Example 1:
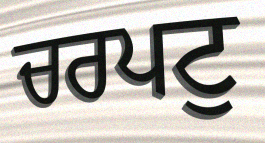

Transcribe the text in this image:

ਚਰਪਟੁ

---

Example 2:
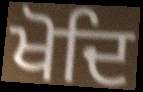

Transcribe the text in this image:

ਖੋਦਿ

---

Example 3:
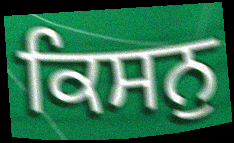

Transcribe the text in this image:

ਕਿਸਨੁ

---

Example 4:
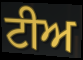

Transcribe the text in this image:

ਟੀਅ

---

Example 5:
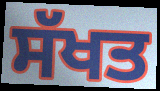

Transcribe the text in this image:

ਸੱਖਤ